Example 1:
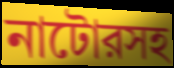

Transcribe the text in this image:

নাটোরসহ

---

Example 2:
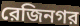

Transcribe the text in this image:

রেজিনগর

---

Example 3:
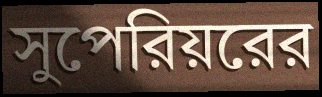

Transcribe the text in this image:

সুপেরিয়রের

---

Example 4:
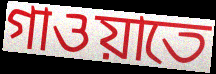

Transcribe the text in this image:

গাওয়াতে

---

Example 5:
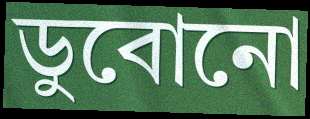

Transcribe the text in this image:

ডুবোনো